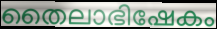
തൈലാഭിഷേകം